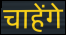
चाहेंगे